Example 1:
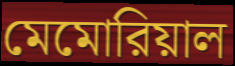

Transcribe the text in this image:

মেমোরিয়াল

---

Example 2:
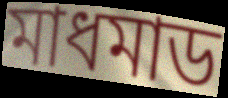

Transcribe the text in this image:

মাধমাড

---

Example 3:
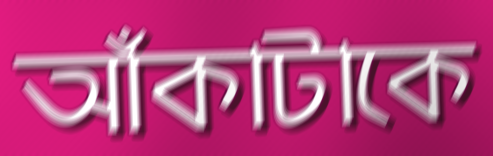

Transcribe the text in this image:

আঁকাটাকে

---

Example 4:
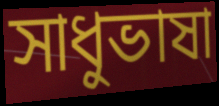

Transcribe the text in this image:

সাধুভাষা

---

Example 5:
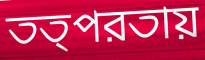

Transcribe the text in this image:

তত্পরতায়